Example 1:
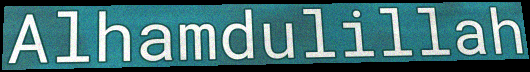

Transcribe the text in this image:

Alhamdulillah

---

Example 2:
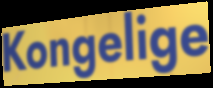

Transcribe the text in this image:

Kongelige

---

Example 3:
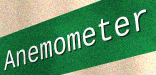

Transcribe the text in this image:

Anemometer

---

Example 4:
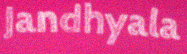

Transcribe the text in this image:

Jandhyala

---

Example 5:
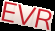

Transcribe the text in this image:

EVR